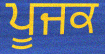
ਪੂਜਕ